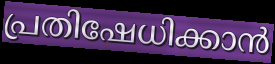
പ്രതിഷേധിക്കാൻ